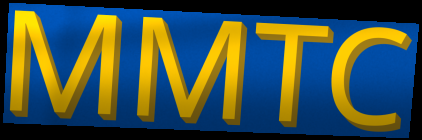
MMTC